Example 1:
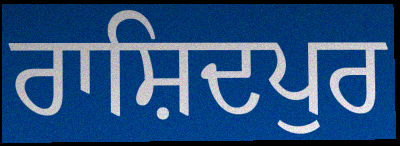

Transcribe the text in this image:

ਰਾਸ਼ਿਦਪੁਰ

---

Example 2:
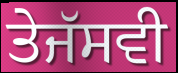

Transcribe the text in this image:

ਤੇਜੱਸਵੀ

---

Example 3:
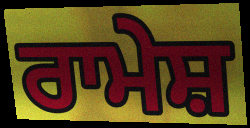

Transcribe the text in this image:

ਰਾਮੇਸ਼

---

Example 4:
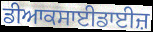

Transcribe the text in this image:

ਡੀਆਕਸਾਈਡਾਈਜ਼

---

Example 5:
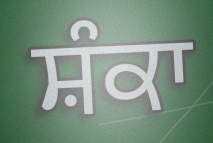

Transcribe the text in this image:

ਸ਼ੰਕਾ